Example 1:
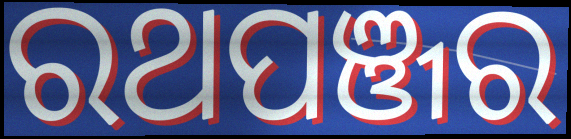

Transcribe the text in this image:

ରଥପଞ୍ଜର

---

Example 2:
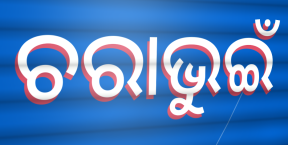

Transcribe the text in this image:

ଚରାଭୁଇଁ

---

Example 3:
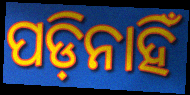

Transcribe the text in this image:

ପଡ଼ିନାହିଁ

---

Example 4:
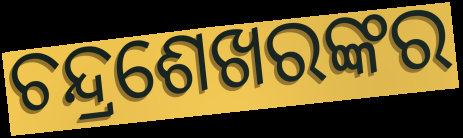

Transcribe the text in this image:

ଚନ୍ଦ୍ରଶେଖରଙ୍କର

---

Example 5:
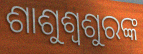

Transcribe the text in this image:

ଶାଶୁଶ୍ୱଶୁରଙ୍କ